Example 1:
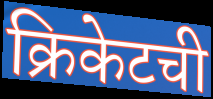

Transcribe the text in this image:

क्रिकेटची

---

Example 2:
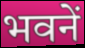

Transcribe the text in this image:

भवनें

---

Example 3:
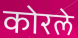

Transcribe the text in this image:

कोरले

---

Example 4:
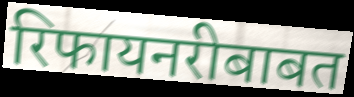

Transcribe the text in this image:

रिफायनरीबाबत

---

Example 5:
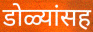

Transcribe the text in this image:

डोळ्यांसह